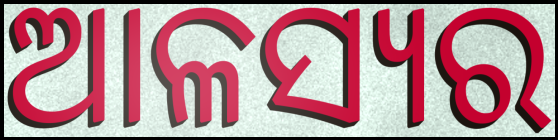
ଆଳସ୍ୟର